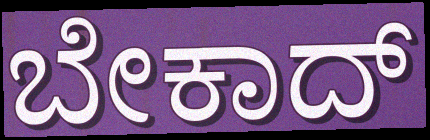
ಬೇಕಾದ್